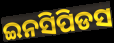
ଇନସିପିଡସ